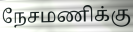
நேசமணிக்கு